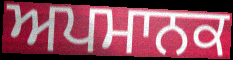
ਅਪਮਾਨਕ